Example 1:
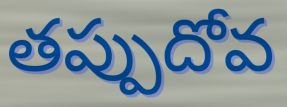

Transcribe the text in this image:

తప్పుదోవ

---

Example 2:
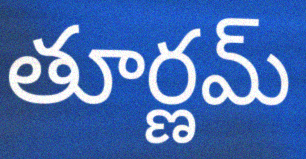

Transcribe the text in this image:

తూర్ణమ్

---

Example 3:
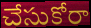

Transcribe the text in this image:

చేసుకోరా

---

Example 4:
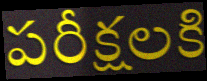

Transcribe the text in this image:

పరీక్షలకి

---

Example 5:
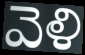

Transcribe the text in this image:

వెళి